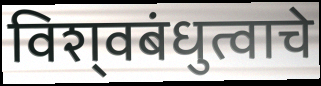
विश्वबंधुत्वाचे